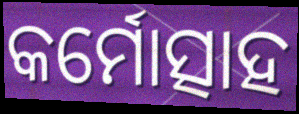
କର୍ମୋତ୍ସାହ